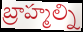
బ్రాహ్మల్ని